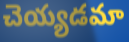
చెయ్యడమా